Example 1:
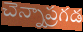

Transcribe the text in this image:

చెన్నాప్రగడ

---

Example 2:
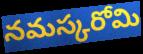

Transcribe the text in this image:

నమస్కరోమి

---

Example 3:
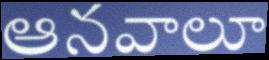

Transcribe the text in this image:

ఆనవాలూ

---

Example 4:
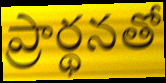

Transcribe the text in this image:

ప్రార్థనతో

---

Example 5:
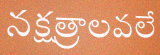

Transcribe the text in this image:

నక్షత్రాలవలే